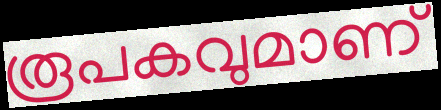
രൂപകവുമാണ്